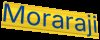
Moraraji